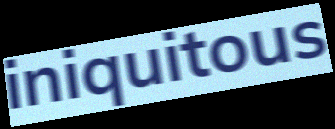
iniquitous